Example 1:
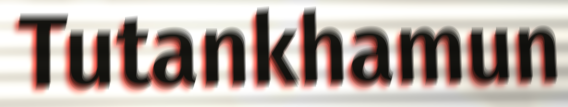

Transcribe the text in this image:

Tutankhamun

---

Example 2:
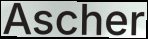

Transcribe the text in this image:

Ascher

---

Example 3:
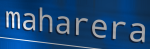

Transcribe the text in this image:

maharera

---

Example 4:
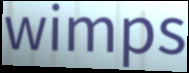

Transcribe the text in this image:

wimps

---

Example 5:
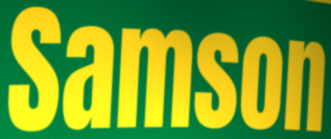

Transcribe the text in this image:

Samson